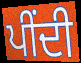
ਪੀਂਦੀ